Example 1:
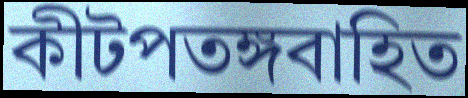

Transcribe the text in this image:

কীটপতঙ্গবাহিত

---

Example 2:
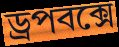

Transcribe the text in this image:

ড্রপবক্সে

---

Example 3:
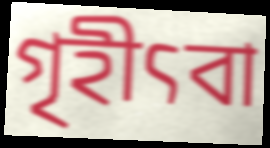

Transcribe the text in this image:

গৃহীৎবা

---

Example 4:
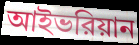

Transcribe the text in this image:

আইভরিয়ান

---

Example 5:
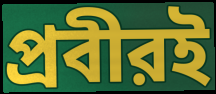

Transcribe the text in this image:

প্রবীরই